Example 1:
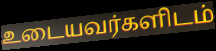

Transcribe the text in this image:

உடையவர்களிடம்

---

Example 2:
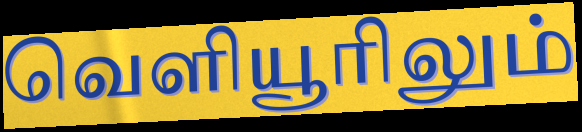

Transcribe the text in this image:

வெளியூரிலும்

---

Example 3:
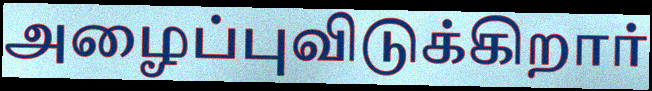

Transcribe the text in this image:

அழைப்புவிடுக்கிறார்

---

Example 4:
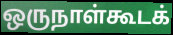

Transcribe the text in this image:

ஒருநாள்கூடக்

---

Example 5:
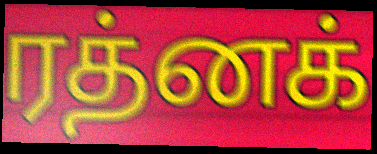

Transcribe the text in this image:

ரத்னக்